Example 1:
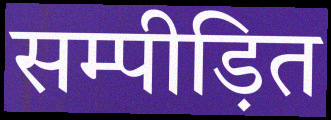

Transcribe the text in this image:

सम्पीड़ित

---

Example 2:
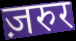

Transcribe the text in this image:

ज़रुर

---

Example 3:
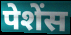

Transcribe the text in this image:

पेशेंस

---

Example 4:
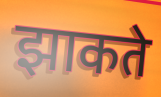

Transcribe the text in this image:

झाकते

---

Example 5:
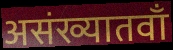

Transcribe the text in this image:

असंख्यातवाँ